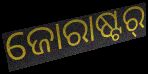
ଜୋରାଷ୍ଟର୍